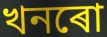
খনৰো